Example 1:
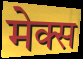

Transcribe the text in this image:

मेक्स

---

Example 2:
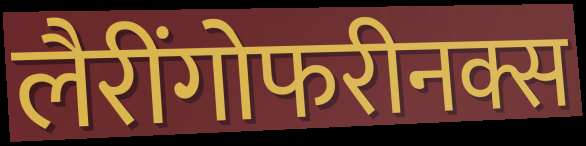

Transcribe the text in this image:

लैरींगोफरीनक्स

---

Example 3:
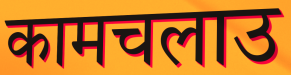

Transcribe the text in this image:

कामचलाउ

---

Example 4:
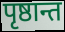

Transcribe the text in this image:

पृष्ठान्त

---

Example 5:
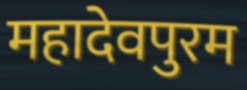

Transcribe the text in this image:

महादेवपुरम